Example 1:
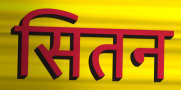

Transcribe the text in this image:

सितन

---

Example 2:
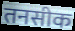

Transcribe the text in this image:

तनसीक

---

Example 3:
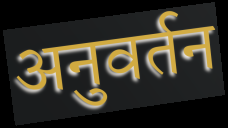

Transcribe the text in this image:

अनुवर्तन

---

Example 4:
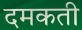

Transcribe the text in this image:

दमकती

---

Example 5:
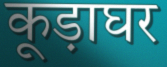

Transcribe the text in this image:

कूड़ाघर